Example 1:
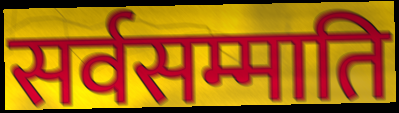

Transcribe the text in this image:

सर्वसम्माति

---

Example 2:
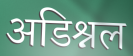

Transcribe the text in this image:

अडिश्नल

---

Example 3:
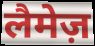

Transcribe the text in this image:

लैमेज़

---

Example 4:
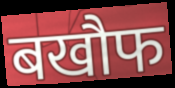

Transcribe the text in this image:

बखौफ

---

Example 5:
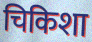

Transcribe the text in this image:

चिकिशा